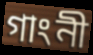
গাংনী